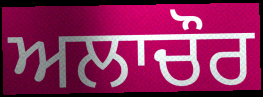
ਅਲਾਚੌਰ